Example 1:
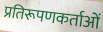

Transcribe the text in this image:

प्रतिरूपणकर्ताओं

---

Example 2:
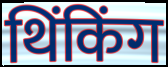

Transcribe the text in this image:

थिंकिंग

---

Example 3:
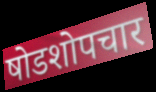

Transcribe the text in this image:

षोडशोपचार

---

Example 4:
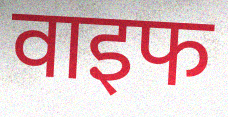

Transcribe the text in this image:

वाइफ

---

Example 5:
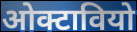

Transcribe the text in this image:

ओक्टावियो